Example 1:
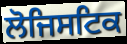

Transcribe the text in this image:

ਲੋਜਿਸਟਿਕ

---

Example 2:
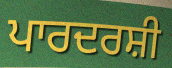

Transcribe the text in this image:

ਪਾਰਦਰਸ਼ੀ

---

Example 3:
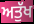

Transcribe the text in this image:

ਅਤੁੱਖ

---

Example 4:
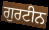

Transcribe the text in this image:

ਗੁਰਟੀਨ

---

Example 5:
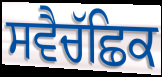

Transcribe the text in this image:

ਸਵੈਚੱਛਿਕ